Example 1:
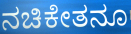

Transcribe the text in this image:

ನಚಿಕೇತನೂ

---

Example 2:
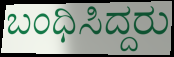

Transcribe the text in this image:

ಬಂಧಿಸಿದ್ದರು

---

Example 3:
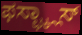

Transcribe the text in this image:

ಫಸ್ಟ್ಕ್ಲಾಸ್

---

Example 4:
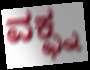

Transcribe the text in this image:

ವಕ್ಫ್ನ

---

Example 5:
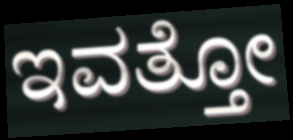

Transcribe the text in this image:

ಇವತ್ತೋ